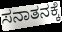
ಸನಾತನಕ್ಕೆ